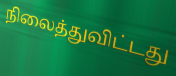
நிலைத்துவிட்டது